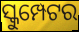
ସ୍କୁମ୍ପେଟର